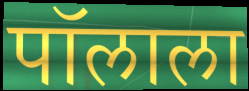
पॉलाला